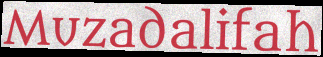
Muzadalifah